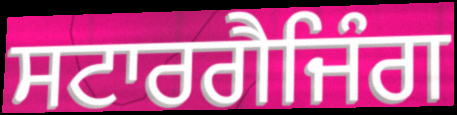
ਸਟਾਰਗੈਜਿੰਗ